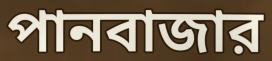
পানবাজার